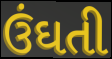
ઉંઘતી